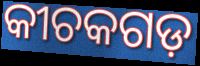
କୀଚକଗଡ଼